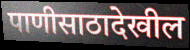
पाणीसाठादेखील